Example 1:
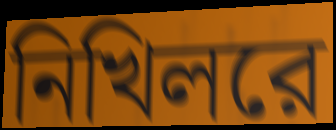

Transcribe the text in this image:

নিখিলরে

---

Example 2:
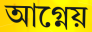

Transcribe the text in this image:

আগ্নেয়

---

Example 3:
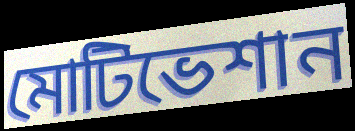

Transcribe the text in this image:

মোটিভেশান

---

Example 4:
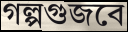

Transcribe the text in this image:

গল্পগুজবে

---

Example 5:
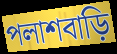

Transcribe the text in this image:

পলাশবাড়ি